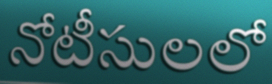
నోటీసులలో